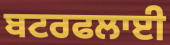
ਬਟਰਫਲਾਈ